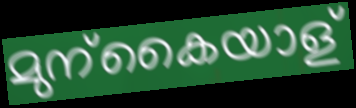
മുന്കൈയാള്